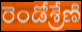
రెండోశ్రేణి